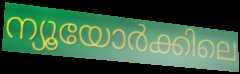
ന്യൂയോർക്കിലെ